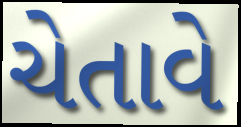
ચેતાવે